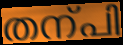
തന്പി